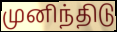
முனிந்திடு